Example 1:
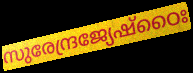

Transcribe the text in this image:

സുരേന്ദ്രജ്യേഷ്ഠൈഃ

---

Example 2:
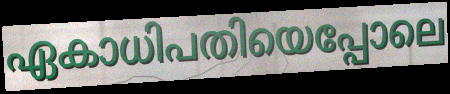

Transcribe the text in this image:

ഏകാധിപതിയെപ്പോലെ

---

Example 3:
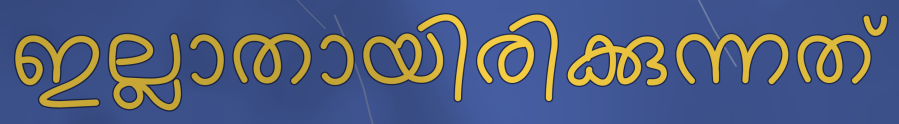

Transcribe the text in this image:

ഇല്ലാതായിരിക്കുന്നത്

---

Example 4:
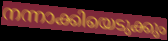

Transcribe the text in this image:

നന്നാക്കിയെടുക്കും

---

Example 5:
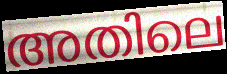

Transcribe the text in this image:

അതിലെ